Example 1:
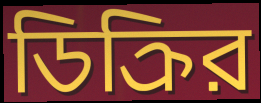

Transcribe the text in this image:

ডিক্রির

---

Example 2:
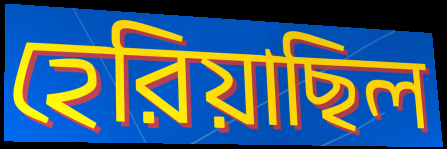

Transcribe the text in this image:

হেরিয়াছিল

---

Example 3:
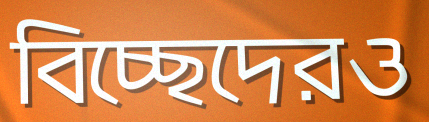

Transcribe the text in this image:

বিচ্ছেদেরও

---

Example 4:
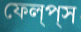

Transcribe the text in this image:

ফেল্‌প্‌স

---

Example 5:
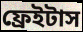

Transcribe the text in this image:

ফ্রেইটাস